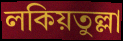
লকিয়তুল্লা